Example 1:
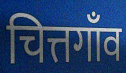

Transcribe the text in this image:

चित्तगाँव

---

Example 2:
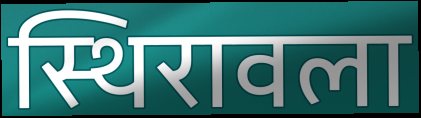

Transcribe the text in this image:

स्थिरावला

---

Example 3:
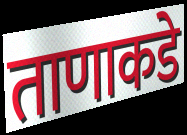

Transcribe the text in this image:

ताणाकडे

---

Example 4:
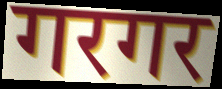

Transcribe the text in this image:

गरगर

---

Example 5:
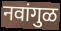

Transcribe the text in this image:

नवांगुळ